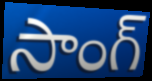
సాంగ్